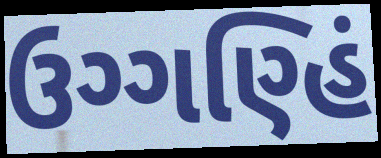
ઉગ્ગણ્હિં